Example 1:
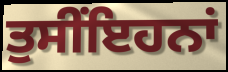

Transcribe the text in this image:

ਤੁਸੀਂਇਹਨਾਂ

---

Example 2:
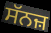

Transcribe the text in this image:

ਸੱਨਜ਼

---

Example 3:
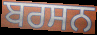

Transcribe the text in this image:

ਬਰਸਨ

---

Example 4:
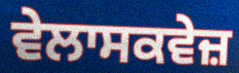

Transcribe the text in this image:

ਵੇਲਾਸਕਵੇਜ਼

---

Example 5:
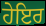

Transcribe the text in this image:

ਹੇਇਰ